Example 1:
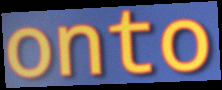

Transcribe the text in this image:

onto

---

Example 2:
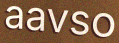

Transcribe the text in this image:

aavso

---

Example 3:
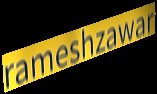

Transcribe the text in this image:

rameshzawar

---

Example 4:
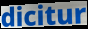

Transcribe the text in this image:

dicitur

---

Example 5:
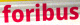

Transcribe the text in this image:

foribus